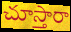
చూస్తారా